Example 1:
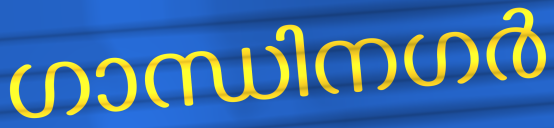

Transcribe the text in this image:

ഗാന്ധിനഗർ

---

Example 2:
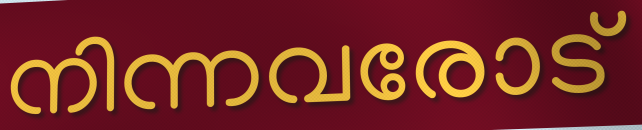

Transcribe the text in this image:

നിന്നവരോട്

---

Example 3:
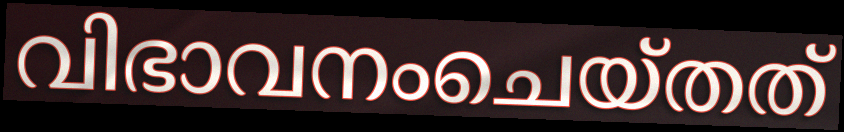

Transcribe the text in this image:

വിഭാവനംചെയ്തത്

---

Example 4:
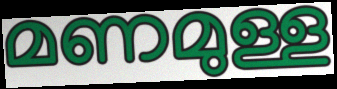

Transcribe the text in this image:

മണമുള്ള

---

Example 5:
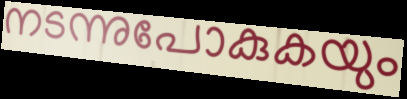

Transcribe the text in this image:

നടന്നുപോകുകയും